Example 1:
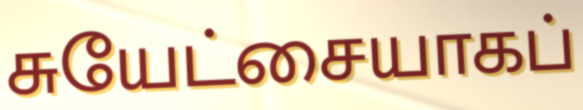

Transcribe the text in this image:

சுயேட்சையாகப்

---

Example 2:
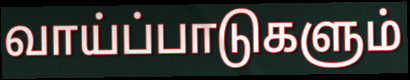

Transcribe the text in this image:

வாய்ப்பாடுகளும்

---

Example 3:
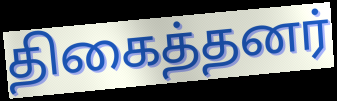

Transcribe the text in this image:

திகைத்தனர்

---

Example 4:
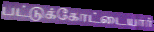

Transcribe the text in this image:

பட்டுக்கோட்டையார்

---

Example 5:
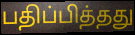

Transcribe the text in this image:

பதிப்பித்தது